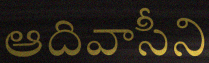
ఆదివాసీని